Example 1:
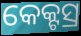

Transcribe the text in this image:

କେକ୍ଟସ୍ର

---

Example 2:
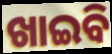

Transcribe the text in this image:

ଖାଇବି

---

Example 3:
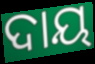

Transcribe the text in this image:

ଦାୟ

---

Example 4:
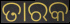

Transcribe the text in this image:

ତାରକ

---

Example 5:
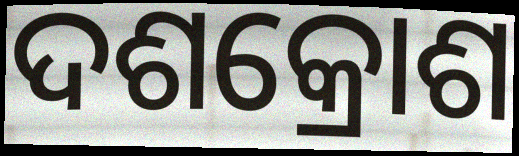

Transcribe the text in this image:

ଦଶକ୍ରୋଶ